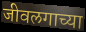
जीवलगाच्या